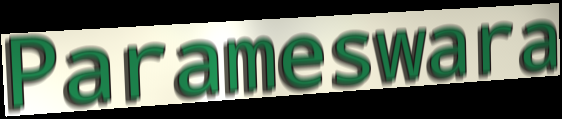
Parameswara